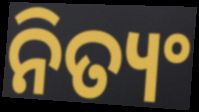
ନିତ୍ୟଂ